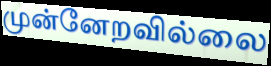
முன்னேறவில்லை